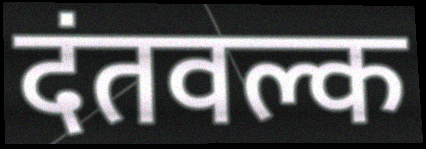
दंतवल्क